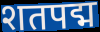
शतपद्म